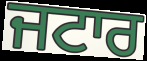
ਜਟਾਰ